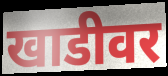
खाडीवर